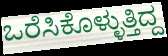
ಒರೆಸಿಕೊಳ್ಳುತ್ತಿದ್ದ